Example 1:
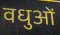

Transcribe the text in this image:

वधुओं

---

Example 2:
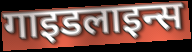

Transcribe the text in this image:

गाइडलाइन्स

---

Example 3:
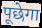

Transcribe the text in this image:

पूछेगा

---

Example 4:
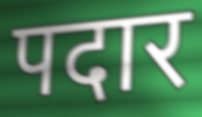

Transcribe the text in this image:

पदार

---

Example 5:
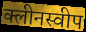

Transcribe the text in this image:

क्लीनस्वीप